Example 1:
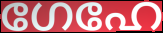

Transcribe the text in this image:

ഗേഹേ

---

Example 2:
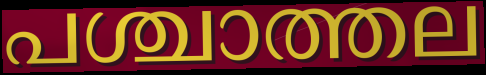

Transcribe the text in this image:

പശ്ചാത്തല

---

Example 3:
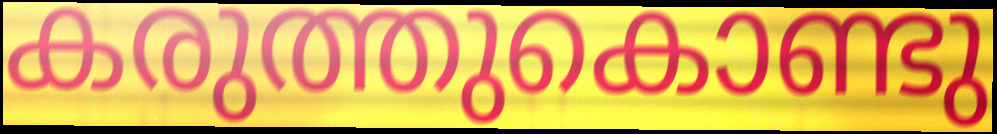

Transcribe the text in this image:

കരുത്തുകൊണ്ടു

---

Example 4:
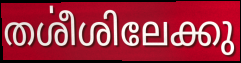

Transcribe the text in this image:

തൎശീശിലേക്കു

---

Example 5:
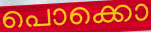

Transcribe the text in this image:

പൊക്കൊ